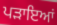
ਪੜਾਇਆਂ